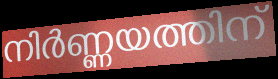
നിർണ്ണയത്തിന്